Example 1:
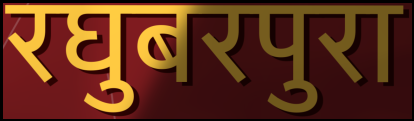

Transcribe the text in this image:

रघुबरपुरा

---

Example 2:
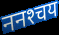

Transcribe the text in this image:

ननश्चय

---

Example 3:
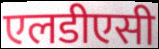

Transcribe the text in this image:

एलडीएसी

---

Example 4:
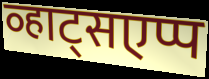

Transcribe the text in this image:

व्हाट्सएप्प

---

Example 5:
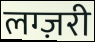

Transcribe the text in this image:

लग्ज़री